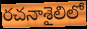
రచనాశైలిలో